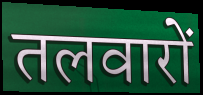
तलवारों